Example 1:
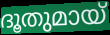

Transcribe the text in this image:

ദൂതുമായ്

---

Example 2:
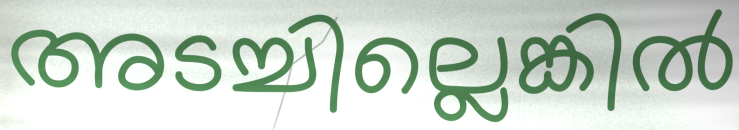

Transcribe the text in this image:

അടച്ചില്ലെങ്കിൽ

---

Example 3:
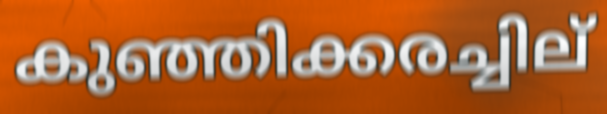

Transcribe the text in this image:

കുഞ്ഞിക്കരച്ചില്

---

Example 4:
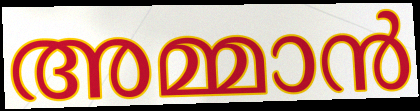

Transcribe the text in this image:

അമ്മാൻ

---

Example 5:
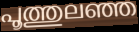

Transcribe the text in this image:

പൂത്തുലഞ്ഞ